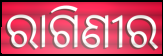
ରାଗିଣୀର